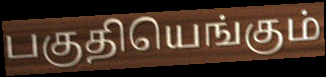
பகுதியெங்கும்